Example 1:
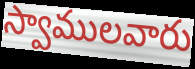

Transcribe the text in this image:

స్వాములవారు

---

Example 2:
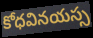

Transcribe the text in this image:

కోధవినయస్స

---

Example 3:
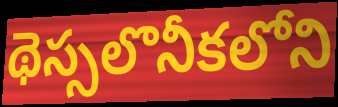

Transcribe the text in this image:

థెస్సలొనీకలోని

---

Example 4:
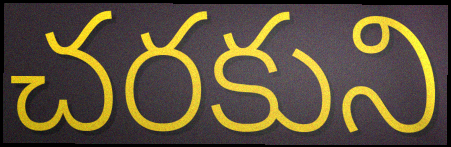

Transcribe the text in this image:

చరకుని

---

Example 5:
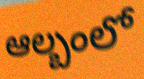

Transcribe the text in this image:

ఆల్బంలో